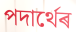
পদাৰ্থেৰ